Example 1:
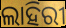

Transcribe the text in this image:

ଲାହିରୀ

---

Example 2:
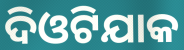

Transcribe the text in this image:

ଦିଓଟିଯାକ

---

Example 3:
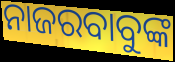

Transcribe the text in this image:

ନାଜରବାବୁଙ୍କ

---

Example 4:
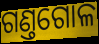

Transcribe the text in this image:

ଗଣ୍ତଗୋଳ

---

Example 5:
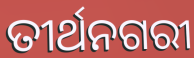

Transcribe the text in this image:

ତୀର୍ଥନଗରୀ